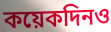
কয়েকদিনও